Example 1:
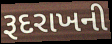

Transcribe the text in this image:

રૂદરાખની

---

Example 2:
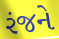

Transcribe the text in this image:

રંજને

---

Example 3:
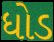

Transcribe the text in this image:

ધોડ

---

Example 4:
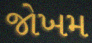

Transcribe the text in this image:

જોખમ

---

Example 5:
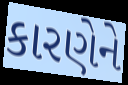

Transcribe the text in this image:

કારણેને